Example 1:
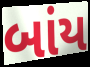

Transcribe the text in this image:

બાંય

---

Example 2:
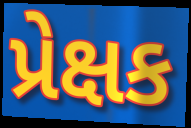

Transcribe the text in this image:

પ્રેક્ષક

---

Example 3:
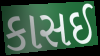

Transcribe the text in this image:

કાસઈ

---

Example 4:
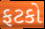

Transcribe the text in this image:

ફટકો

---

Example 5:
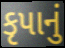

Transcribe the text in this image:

કૃપાનું